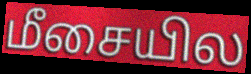
மீசையில